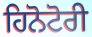
ਹਿਨੋਟੋਰੀ